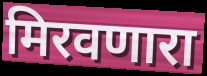
मिरवणारा